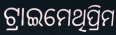
ଟ୍ରାଇମେଥିପ୍ରିମ